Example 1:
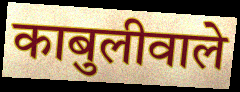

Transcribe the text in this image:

काबुलीवाले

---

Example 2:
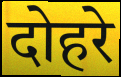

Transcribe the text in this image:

दोहरे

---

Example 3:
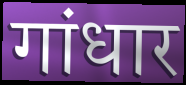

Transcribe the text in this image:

गांधार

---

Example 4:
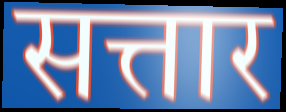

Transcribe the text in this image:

सत्तार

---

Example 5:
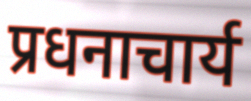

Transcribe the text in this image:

प्रधनाचार्य